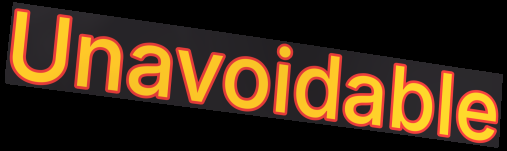
Unavoidable